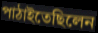
পাঠাইতেছিলেন